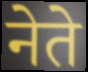
नेते